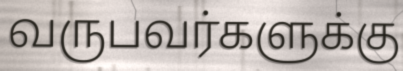
வருபவர்களுக்கு